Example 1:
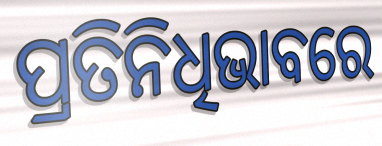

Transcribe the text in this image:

ପ୍ରତିନିଧିଭାବରେ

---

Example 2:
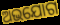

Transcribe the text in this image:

ଅଭଯୋଗ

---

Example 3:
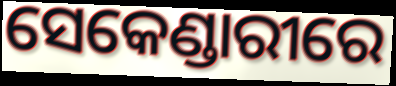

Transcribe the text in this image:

ସେକେଣ୍ଡାରୀରେ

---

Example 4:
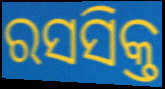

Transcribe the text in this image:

ରସସିକ୍ତ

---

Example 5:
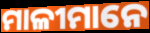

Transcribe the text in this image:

ମାଳୀମାନେ